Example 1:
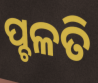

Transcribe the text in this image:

ପ୍ଚଳତି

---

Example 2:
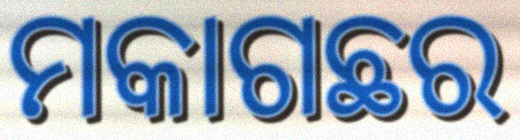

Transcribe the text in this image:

ମକାଗଛର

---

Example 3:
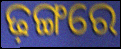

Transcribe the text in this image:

ଢ଼ଙ୍ଗରେ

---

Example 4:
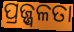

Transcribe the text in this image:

ପ୍ରଜ୍ଜ୍ୱଳତା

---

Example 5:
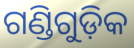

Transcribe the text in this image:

ଗଣ୍ଡିଗୁଡ଼ିକ